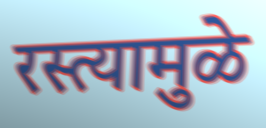
रस्त्यामुळे